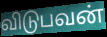
விடுபவன்